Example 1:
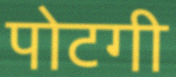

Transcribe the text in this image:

पोटगी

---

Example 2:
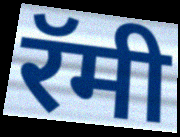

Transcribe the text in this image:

रॅमी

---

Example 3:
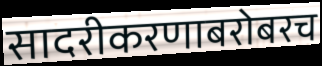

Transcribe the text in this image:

सादरीकरणाबरोबरच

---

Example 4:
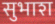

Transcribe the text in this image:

सुभाश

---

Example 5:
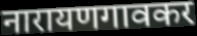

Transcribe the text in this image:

नारायणगावकर